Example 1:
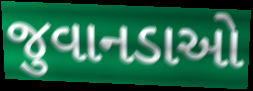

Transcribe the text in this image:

જુવાનડાઓ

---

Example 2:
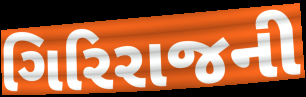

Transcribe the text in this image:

ગિરિરાજની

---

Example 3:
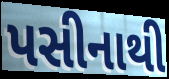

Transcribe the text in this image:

પસીનાથી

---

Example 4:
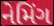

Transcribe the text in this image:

નેમિંગ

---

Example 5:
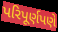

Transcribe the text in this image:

પરિપૂર્ણપણે